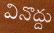
వినొద్దు